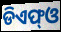
ଡିଏଫ୍ଓ